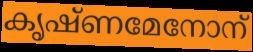
കൃഷ്ണമേനോന്